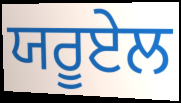
ਯਰੂਏਲ